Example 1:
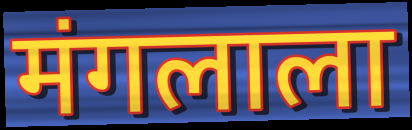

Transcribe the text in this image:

मंगलाला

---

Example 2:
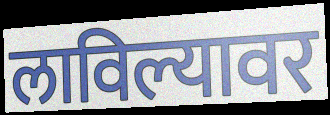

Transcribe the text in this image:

लाविल्यावर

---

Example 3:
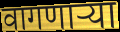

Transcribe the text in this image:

वागणाऱ्या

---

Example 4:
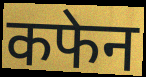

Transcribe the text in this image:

कफेन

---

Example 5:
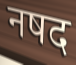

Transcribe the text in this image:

नषद